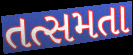
તત્સમતા